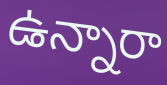
ఉన్నారా